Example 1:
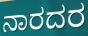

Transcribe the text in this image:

ನಾರದರ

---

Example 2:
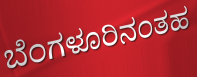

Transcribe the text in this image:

ಬೆಂಗಳೂರಿನಂತಹ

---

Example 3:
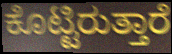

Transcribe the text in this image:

ಕೊಟ್ಟಿರುತ್ತಾರೆ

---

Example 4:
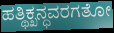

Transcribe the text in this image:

ಹತ್ಥಿಕ್ಖನ್ಧವರಗತೋ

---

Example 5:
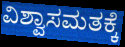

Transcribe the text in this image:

ವಿಶ್ವಾಸಮತಕ್ಕೆ